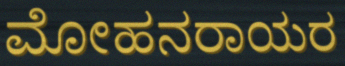
ಮೋಹನರಾಯರ